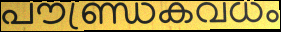
പൗണ്ഡ്രകവധം